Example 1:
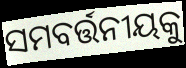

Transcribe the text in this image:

ସମବର୍ତ୍ତନୀୟକୁ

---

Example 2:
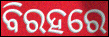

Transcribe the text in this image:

ବିରହରେ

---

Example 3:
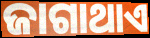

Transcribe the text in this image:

ଜାଗାଥାଏ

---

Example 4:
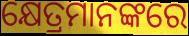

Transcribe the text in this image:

କ୍ଷେତ୍ରମାନଙ୍କରେ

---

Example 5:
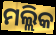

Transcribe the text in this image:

ମଲ୍ଲିକ